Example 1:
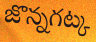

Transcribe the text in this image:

జొన్నగట్క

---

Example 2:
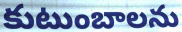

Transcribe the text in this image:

కుటుంబాలను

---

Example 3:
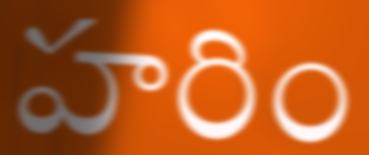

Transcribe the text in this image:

హరిం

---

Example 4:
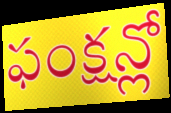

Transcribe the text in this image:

ఫంక్షన్లో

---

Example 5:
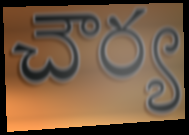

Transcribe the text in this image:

చౌర్య